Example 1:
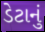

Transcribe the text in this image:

ડેટાનું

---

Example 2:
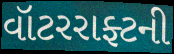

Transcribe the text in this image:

વૉટરરાફ્ટની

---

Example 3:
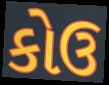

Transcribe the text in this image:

કોઉ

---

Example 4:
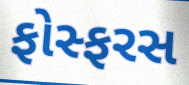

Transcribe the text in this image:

ફોસ્ફરસ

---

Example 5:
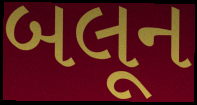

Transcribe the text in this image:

બલૂન